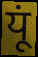
यूं